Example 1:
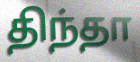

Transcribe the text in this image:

திந்தா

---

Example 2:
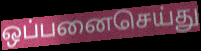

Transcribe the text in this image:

ஒப்பனைசெய்து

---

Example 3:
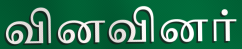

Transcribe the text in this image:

வினவினர்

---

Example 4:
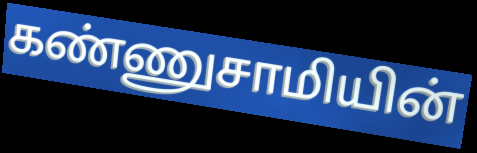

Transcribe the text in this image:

கண்ணுசாமியின்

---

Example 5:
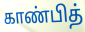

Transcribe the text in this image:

காண்பித்